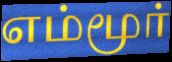
எம்மூர்